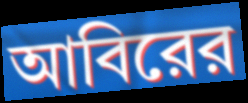
আবিরের